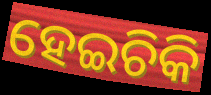
ହେଇଚିକି